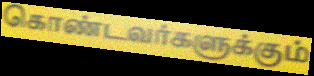
கொண்டவர்களுக்கும்